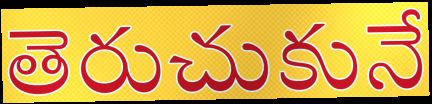
తెరుచుకునే